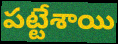
పట్టేశాయి